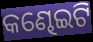
କଣ୍ଢେଇଟି